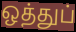
ஒத்துப்